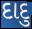
દાદુ